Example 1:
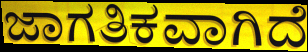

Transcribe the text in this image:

ಜಾಗತಿಕವಾಗಿದೆ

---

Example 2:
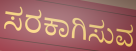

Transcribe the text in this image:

ಸರಕಾಗಿಸುವ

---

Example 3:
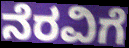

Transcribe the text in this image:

ನೆರವಿಗೆ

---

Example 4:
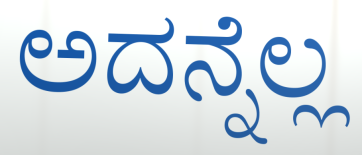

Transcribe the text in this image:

ಅದನ್ನೆಲ್ಲ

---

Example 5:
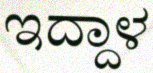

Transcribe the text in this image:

ಇದ್ದಾಳ